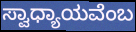
ಸ್ವಾಧ್ಯಾಯವೆಂಬ